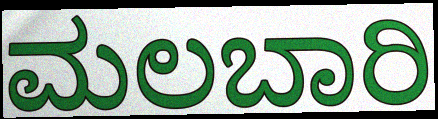
ಮಲಬಾರಿ